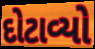
દોટાવ્યો